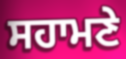
ਸਹਾਮਣੇ